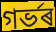
গৰ্ভৰ